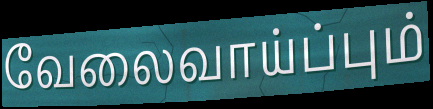
வேலைவாய்ப்பும்